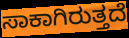
ಸಾಕಾಗಿರುತ್ತದೆ